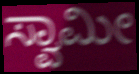
ಸ್ವಾಮೀ